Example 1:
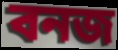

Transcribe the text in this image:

বনজ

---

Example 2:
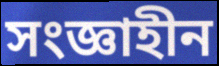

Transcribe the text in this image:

সংজ্ঞাহীন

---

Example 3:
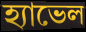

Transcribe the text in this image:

হ্যাভেল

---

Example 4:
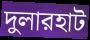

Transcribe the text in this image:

দুলারহাট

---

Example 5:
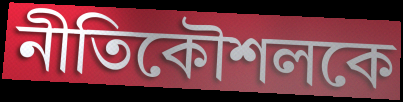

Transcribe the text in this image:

নীতিকৌশলকে